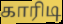
காரிடி